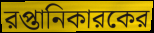
রপ্তানিকারকের